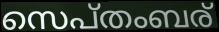
സെപ്തംബര്